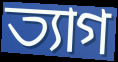
ত্যাগ